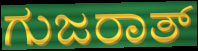
ಗುಜರಾತ್